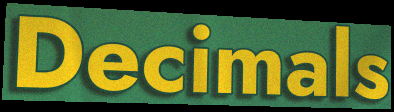
Decimals